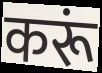
करूं